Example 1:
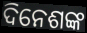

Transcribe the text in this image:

ଦିନେଶଙ୍କ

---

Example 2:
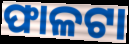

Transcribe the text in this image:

ଫାଳଟା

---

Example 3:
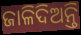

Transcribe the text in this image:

ଜାଳିଦିଅନ୍ତି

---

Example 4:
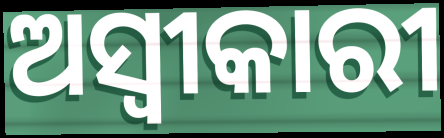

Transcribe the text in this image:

ଅସ୍ୱୀକାରୀ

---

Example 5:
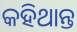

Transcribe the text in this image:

କହିଥାନ୍ତ